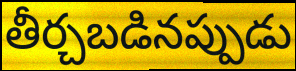
తీర్చబడినప్పుడు